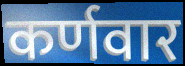
कर्णवार